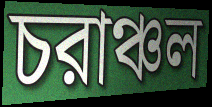
চরাঞ্চল